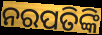
ନରପତିଙ୍କି